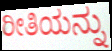
ರೀತಿಯನ್ನು